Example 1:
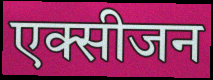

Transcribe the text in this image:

एक्सीजन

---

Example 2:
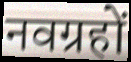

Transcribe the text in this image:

नवग्रहों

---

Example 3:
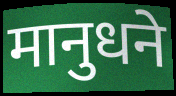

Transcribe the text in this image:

मानुधने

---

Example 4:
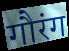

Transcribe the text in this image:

गौरंग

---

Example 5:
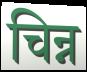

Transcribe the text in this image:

चिन्न